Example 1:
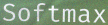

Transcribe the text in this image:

Softmax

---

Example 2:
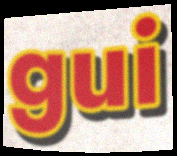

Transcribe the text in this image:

gui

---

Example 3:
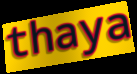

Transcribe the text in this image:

thaya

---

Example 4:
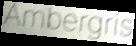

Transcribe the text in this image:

Ambergris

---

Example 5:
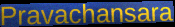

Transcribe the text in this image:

Pravachansara